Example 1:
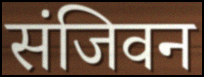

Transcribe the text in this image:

संजिवन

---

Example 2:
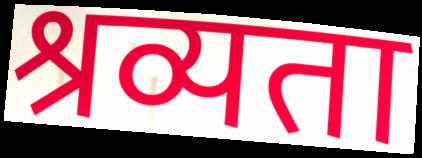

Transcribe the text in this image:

श्रव्यता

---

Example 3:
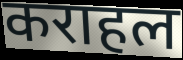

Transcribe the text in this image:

कराहल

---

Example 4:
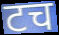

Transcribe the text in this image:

टच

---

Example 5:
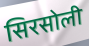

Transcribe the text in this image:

सिरसोली